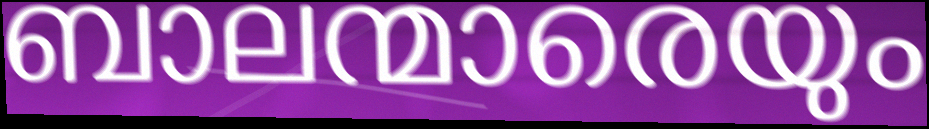
ബാലന്മാരെയും